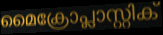
മൈക്രോപ്ലാസ്റ്റിക്